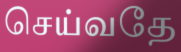
செய்வதே